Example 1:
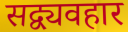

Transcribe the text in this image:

सद्व्यवहार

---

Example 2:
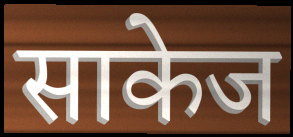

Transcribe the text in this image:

साकेज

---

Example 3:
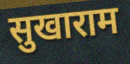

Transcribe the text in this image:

सुखाराम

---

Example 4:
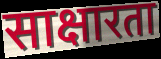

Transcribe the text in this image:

साक्षारता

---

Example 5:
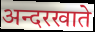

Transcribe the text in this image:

अन्दरखाते